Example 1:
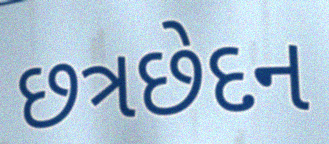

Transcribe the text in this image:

છત્રછેદન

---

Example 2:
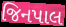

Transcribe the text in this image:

જિનપાલ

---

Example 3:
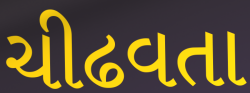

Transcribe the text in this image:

ચીઢવતા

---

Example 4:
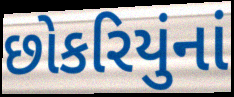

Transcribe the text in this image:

છોકરિયુંનાં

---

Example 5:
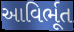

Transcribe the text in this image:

આવિર્ભૂત